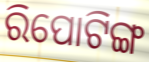
ରିପୋଟିଙ୍ଗ